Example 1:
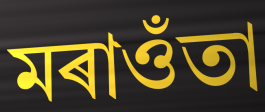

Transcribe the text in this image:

মৰাওঁতা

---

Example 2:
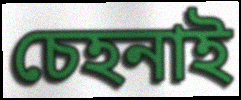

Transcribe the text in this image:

চেহনাই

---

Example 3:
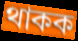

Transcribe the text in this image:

থাকক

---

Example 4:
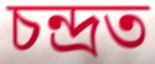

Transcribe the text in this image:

চন্দ্ৰত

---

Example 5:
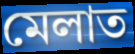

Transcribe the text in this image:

মেলাত